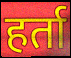
हर्ता